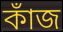
কাঁজ